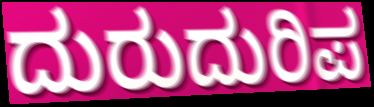
ದುರುದುರಿಪ